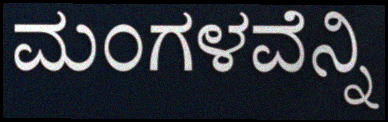
ಮಂಗಳವೆನ್ನಿ